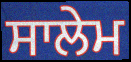
ਸਾਲੇਮ